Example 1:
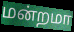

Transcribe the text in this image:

மன்றமா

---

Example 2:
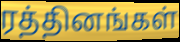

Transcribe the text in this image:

ரத்தினங்கள்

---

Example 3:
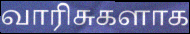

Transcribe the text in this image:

வாரிசுகளாக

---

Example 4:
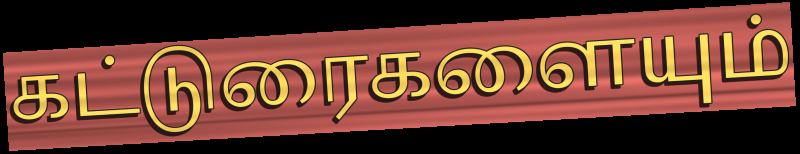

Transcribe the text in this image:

கட்டுரைகளையும்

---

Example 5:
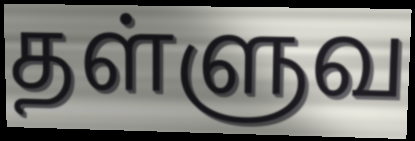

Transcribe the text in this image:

தள்ளுவ